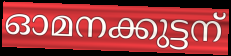
ഓമനക്കുട്ടന്